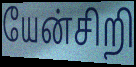
யேன்சிறி